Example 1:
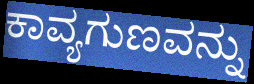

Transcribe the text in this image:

ಕಾವ್ಯಗುಣವನ್ನು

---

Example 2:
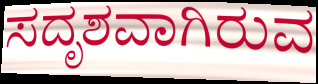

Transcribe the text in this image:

ಸದೃಶವಾಗಿರುವ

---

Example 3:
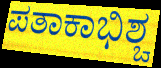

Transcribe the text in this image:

ಪತಾಕಾಭಿಶ್ಚ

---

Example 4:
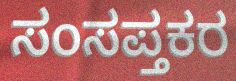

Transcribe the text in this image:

ಸಂಸಪ್ತಕರ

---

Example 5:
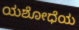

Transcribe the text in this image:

ಯಶೋಧೆಯ